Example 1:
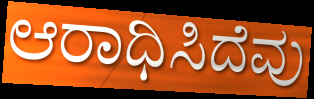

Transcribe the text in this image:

ಆರಾಧಿಸಿದೆವು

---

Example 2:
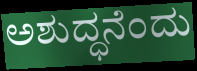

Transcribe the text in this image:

ಅಶುದ್ಧನೆಂದು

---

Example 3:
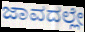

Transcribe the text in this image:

ಜಾವದಲ್ಲೇ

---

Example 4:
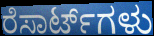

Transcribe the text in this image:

ರೆಸಾರ್ಟ್‌ಗಳು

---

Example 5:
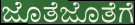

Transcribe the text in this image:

ಜೊತೆಜೊತೆಗೆ